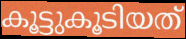
കൂട്ടുകൂടിയത്